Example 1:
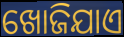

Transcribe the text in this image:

ଖୋଜିଯାଏ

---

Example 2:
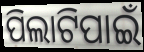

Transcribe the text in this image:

ପିଲାଟିପାଇଁ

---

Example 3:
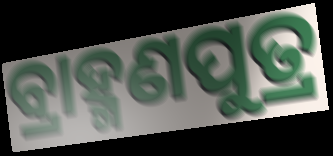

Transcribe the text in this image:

ବ୍ରାହ୍ମଣପୁତ୍ର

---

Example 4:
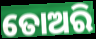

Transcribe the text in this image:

ତୋଅରି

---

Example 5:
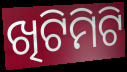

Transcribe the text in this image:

ଖିଟିମିଟି